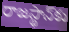
రాజస్థాన్‌కు